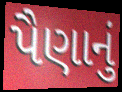
પૈણાનું